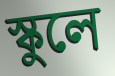
স্কুলে